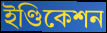
ইণ্ডিকেশন